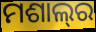
ମଶାଲ୍‌ର